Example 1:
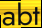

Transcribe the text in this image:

abt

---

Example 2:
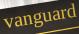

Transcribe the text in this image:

vanguard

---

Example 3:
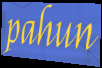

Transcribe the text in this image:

pahun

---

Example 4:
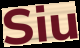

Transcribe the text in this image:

Siu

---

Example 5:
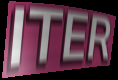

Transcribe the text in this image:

ITER